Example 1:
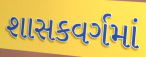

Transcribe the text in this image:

શાસકવર્ગમાં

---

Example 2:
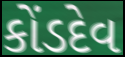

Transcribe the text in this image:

કોંડદેવ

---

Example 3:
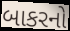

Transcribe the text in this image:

બાકરનો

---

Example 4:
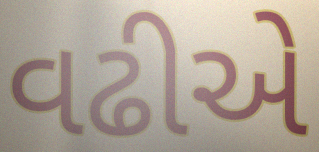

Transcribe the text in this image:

વઢીએ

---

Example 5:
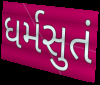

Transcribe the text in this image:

ધર્મસુતં